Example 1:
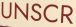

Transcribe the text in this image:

UNSCR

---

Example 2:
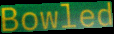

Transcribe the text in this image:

Bowled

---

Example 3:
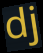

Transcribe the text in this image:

dj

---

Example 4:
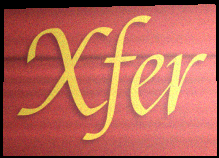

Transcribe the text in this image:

Xfer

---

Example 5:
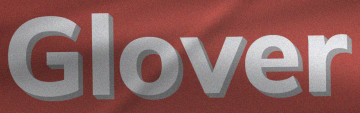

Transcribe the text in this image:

Glover